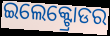
ଇଲେକ୍ଟ୍ରୋଡର